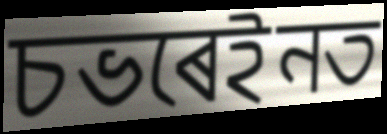
চভৰেইনত